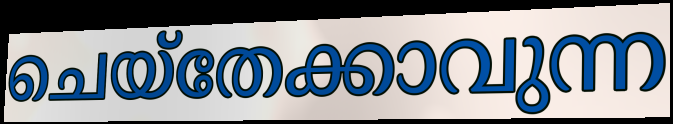
ചെയ്തേക്കാവുന്ന